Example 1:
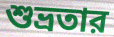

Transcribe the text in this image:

শুভ্রতার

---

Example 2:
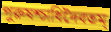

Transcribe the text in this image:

পুরুষশ্চাধিদৈবতম্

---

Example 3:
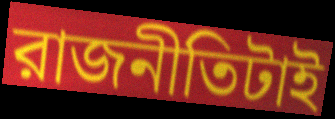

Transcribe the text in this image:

রাজনীতিটাই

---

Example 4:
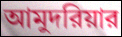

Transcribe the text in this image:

আমুদরিয়ার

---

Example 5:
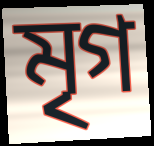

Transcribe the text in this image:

মৃগ